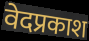
वेदप्रकाश